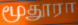
மூதூரா